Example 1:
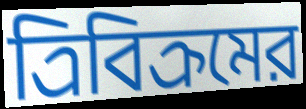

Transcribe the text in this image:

ত্রিবিক্রমের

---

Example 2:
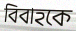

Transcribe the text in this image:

বিবাহকে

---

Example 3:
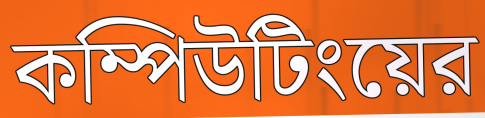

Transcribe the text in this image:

কম্পিউটিংয়ের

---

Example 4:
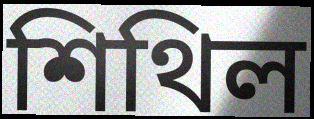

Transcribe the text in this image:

শিথিল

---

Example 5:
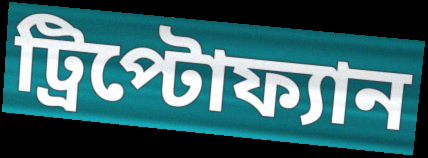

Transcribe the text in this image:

ট্রিপ্টোফ্যান